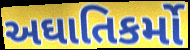
અઘાતિકર્મો